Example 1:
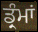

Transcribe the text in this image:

ਡ੍ਰੰਮਾਂ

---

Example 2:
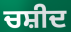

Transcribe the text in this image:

ਚਸ਼ੀਦ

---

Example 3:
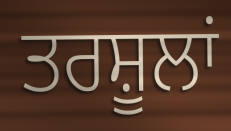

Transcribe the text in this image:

ਤਰਸ਼ੂਲਾਂ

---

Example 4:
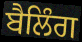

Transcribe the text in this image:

ਬੈਲਿੰਗ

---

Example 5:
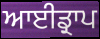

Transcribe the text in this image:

ਆਈਡ੍ਰਾਪ